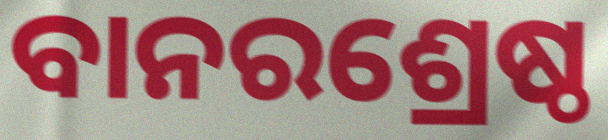
ବାନରଶ୍ରେଷ୍ଠ